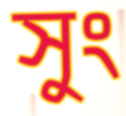
সুং